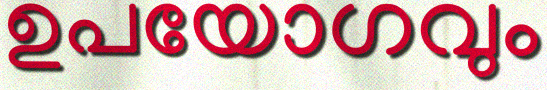
ഉപയോഗവും